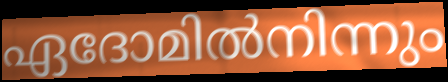
ഏദോമിൽനിന്നും